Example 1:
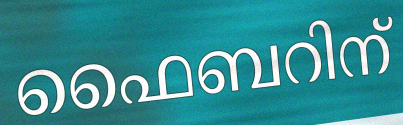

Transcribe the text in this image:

ഫൈബറിന്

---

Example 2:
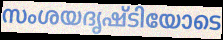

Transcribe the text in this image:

സംശയദൃഷ്ടിയോടെ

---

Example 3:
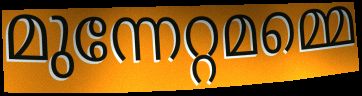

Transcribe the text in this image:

മുന്നേറ്റമമ്മെ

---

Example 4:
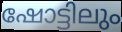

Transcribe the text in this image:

ഷോട്ടിലും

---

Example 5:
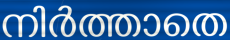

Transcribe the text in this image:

നിർത്താതെ